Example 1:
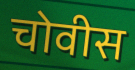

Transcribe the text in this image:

चोवीस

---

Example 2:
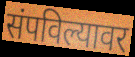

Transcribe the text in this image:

संपविल्यावर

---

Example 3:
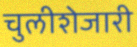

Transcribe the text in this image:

चुलीशेजारी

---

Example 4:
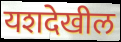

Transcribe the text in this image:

यशदेखील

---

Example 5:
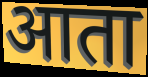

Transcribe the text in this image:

आता